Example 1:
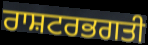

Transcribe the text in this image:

ਰਾਸ਼ਟਰਭਗਤੀ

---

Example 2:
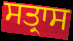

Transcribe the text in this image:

ਸਤ੍ਰਾਸ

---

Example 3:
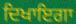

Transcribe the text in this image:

ਦਿਖਾਇਗਾ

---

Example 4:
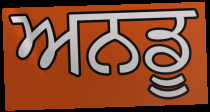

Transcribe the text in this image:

ਅਨਡੂ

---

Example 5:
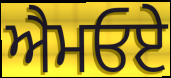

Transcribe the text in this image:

ਐਮਓਏ